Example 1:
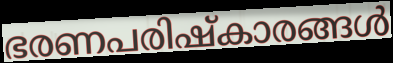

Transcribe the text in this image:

ഭരണപരിഷ്കാരങ്ങൾ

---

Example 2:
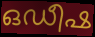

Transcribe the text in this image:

ഒഡീഷ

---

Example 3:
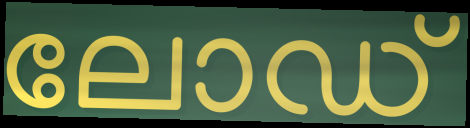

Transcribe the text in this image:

ലോഡ്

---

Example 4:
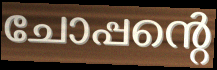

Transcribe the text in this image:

ചോപ്പന്റെ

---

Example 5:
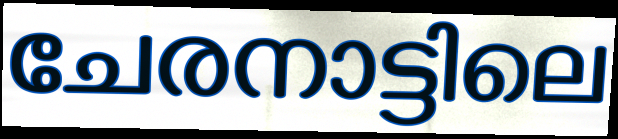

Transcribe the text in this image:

ചേരനാട്ടിലെ